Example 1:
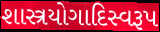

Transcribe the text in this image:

શાસ્ત્રયોગાદિસ્વરૂપ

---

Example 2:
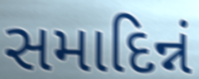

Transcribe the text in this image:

સમાદિન્નં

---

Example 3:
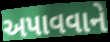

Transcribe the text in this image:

અપાવવાને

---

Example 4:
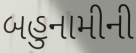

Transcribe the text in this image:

બહુનામીની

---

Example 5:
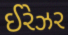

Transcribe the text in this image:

ઈરેઝર